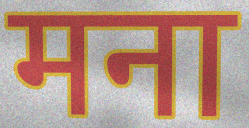
मना